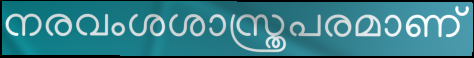
നരവംശശാസ്ത്രപരമാണ്